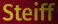
Steiff